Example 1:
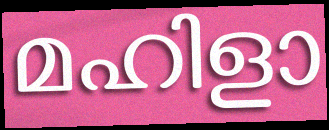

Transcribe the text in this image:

മഹിളാ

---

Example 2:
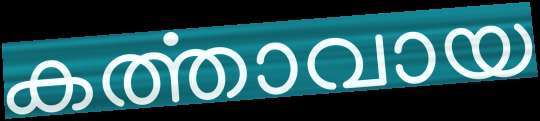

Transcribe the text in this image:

കൎത്താവായ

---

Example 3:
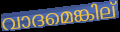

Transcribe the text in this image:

വാദമെങ്കില്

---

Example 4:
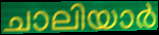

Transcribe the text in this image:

ചാലിയാർ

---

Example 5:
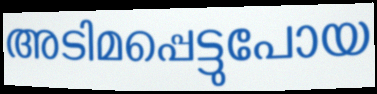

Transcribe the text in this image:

അടിമപ്പെട്ടുപോയ